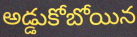
అడ్డుకోబోయిన